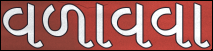
વળાવવા